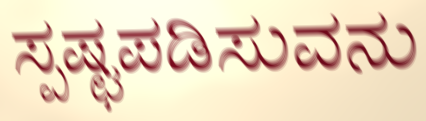
ಸ್ಪಷ್ಟಪಡಿಸುವನು